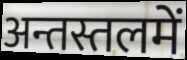
अन्तस्तलमें